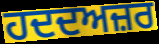
ਹਦਦਅਜ਼ਰ